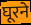
घूरने